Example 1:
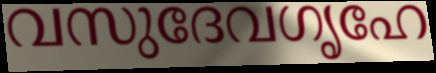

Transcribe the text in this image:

വസുദേവഗൃഹേ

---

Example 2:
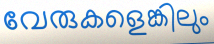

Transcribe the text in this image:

വേരുകളെങ്കിലും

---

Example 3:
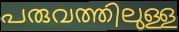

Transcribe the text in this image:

പരുവത്തിലുള്ള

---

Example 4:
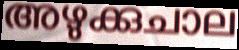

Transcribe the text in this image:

അഴുക്കുചാല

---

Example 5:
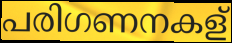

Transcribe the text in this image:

പരിഗണനകള്